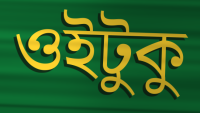
ওইটুকু